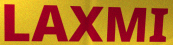
LAXMI